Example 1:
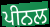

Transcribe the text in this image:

ਪੀਨਲ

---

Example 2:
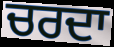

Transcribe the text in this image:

ਚਰਦਾ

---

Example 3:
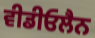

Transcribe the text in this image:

ਵੀਡੀਓਲੈਨ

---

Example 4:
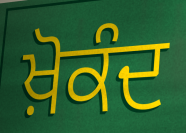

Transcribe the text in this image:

ਖ਼ੋਕੰਦ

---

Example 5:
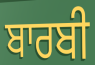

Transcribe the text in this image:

ਬਾਰਬੀ